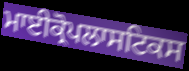
ਮਾਈਕ੍ਰੋਪਲਾਸਟਿਕਸ